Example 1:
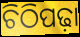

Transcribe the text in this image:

ଚିଠିପଢ଼ା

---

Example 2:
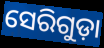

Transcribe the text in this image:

ସେରିଗୁଡ଼ା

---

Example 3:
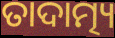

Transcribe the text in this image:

ତାଦାତ୍ମ୍ୟ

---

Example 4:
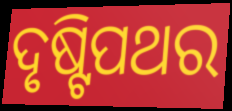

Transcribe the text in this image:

ଦୃଷ୍ଟିପଥର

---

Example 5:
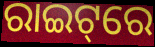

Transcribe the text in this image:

ରାଇଟ୍‌ରେ